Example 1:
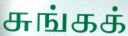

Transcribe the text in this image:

சுங்கக்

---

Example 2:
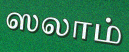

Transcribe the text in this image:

ஸலாம்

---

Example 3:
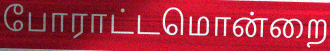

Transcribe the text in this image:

போராட்டமொன்றை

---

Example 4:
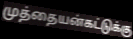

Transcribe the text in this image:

முத்தையன்கட்டுக்கு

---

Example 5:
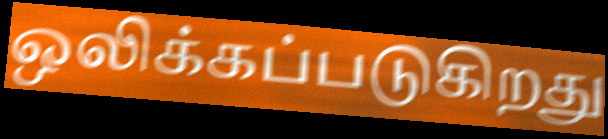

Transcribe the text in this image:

ஒலிக்கப்படுகிறது